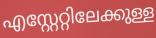
എസ്റ്റേറ്റിലേക്കുള്ള